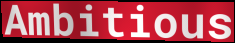
Ambitious